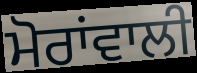
ਮੋਰਾਂਵਾਲੀ